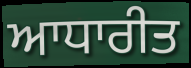
ਆਧਾਰੀਤ